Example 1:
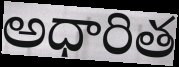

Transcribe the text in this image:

అధారిత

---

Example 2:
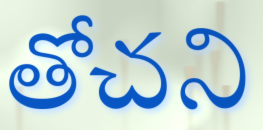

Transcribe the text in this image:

తోచని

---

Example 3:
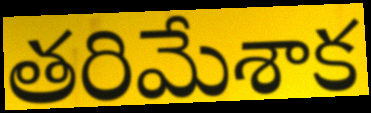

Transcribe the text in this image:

తరిమేశాక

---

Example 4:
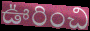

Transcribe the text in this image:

ఊరించి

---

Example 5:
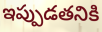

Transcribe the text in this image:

ఇప్పుడతనికి